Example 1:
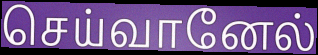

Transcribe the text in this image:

செய்வானேல்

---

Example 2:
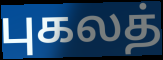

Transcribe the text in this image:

புகலத்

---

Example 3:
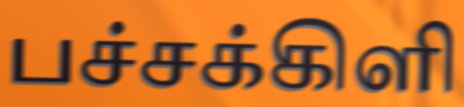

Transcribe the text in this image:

பச்சக்கிளி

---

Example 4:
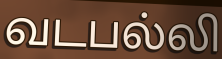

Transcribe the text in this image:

வடபல்லி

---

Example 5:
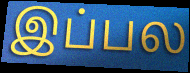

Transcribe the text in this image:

இப்பல